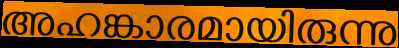
അഹങ്കാരമായിരുന്നു